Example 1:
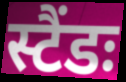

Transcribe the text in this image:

स्टैंडः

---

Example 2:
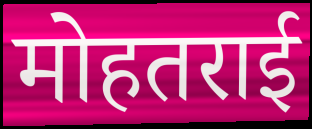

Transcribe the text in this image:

मोहतराई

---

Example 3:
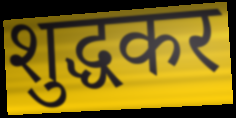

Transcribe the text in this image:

शुद्धकर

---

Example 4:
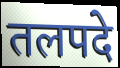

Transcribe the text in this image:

तलपदे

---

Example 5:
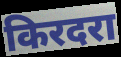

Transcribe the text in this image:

किरदरा